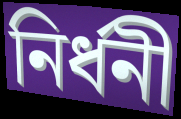
নির্ধনী